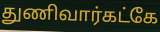
துணிவார்கட்கே